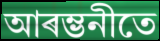
আৰম্ভনীতে